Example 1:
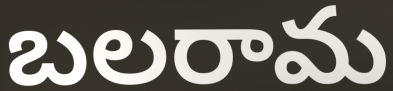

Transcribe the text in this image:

బలరామ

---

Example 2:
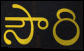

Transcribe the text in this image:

సౌరి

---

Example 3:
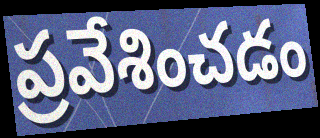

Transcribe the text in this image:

ప్రవేశించడం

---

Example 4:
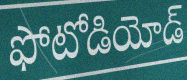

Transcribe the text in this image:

ఫోటోడియోడ్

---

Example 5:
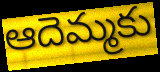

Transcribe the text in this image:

ఆదెమ్మకు